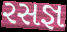
રસજ્ઞ